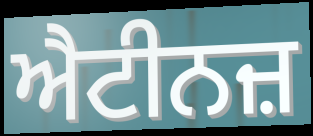
ਐਟੀਨਜ਼